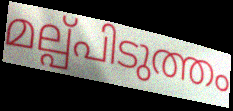
മല്പ്പിടുത്തം